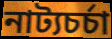
নাট্যচর্চা